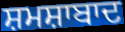
ਸ਼ਮਸ਼ਾਬਾਦ